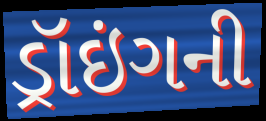
ડ્રૉઇંગની